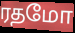
ரதமோ